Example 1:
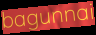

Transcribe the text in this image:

bagunnai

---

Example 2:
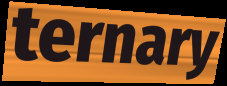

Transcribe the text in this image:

ternary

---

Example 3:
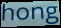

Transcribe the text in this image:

hong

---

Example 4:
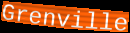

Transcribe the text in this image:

Grenville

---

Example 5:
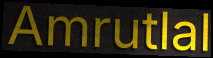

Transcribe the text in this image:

Amrutlal